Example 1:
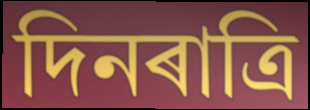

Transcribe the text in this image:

দিনৰাত্ৰি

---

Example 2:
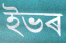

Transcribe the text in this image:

ইভৰ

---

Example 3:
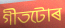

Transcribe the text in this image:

গীতটোৰ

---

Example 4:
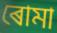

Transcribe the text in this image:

ৰোমা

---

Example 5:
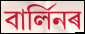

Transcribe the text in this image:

বাৰ্লিনৰ